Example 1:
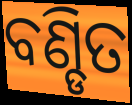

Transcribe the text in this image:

ବଣ୍ଡିତ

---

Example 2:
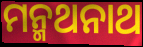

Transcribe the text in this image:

ମନ୍ମଥନାଥ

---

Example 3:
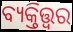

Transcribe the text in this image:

ବ୍ୟକ୍ତିତ୍ତ୍ଵର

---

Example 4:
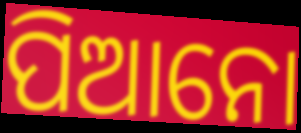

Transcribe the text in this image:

ପିଆନୋ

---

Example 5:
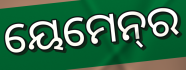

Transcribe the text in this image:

ୟେମେନ୍‌ର